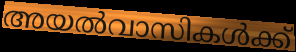
അയൽവാസികൾക്ക്